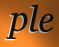
ple